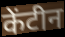
केंटीन